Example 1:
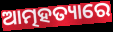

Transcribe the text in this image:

ଆତ୍ମହତ୍ୟାରେ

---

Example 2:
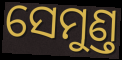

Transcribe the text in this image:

ସେମୁଣ୍ତ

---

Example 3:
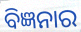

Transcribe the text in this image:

ବିଜ୍ଞନାର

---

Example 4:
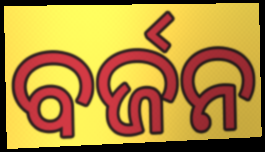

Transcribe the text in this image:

ବର୍ଜନ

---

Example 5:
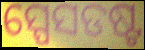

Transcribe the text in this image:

ସ୍ପେସଡଷ୍ଟ